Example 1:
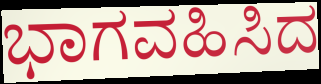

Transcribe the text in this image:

ಭಾಗವಹಿಸಿದ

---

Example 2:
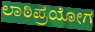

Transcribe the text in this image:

ಲಾಠಿಪ್ರಯೋಗ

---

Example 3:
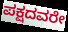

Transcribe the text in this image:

ಪಕ್ಷದವರೇ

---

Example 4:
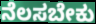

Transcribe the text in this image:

ನೆಲಸಬೇಕು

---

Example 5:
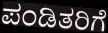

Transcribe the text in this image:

ಪಂಡಿತರಿಗೆ